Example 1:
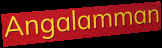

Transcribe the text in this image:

Angalamman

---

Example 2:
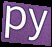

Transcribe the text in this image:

py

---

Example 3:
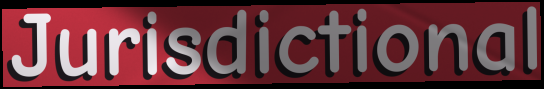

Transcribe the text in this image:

Jurisdictional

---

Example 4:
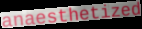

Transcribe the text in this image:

anaesthetized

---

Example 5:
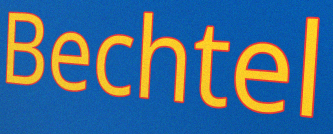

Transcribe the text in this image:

Bechtel